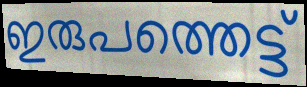
ഇരുപത്തെട്ട്